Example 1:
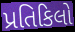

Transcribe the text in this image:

પ્રતિકિલો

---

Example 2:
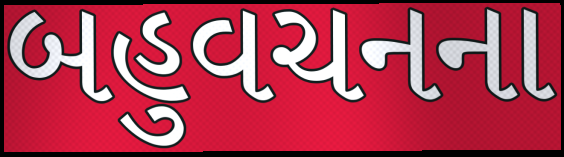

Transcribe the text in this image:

બહુવચનના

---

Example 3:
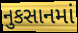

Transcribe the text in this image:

નુકસાનમાં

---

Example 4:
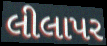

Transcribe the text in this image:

લીલાપર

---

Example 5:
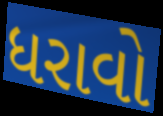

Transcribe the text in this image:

ધરાવો